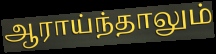
ஆராய்ந்தாலும்